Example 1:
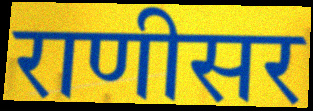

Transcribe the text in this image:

राणीसर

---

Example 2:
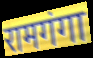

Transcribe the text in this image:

रामगंगा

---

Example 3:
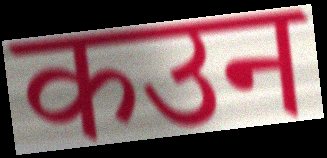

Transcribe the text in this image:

कउन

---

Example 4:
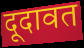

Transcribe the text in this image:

दूदावत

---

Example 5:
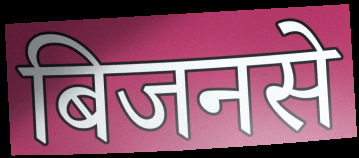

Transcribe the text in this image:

बिजनसे